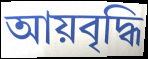
আয়বৃদ্ধি